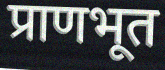
प्राणभूत